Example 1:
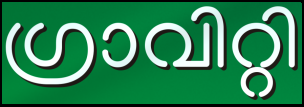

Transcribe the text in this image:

ഗ്രാവിറ്റി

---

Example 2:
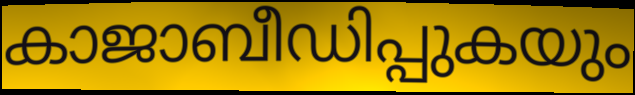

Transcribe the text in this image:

കാജാബീഡിപ്പുകയും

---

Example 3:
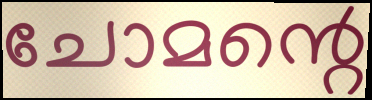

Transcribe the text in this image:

ചോമന്റെ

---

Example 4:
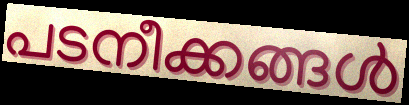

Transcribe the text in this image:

പടനീക്കങ്ങൾ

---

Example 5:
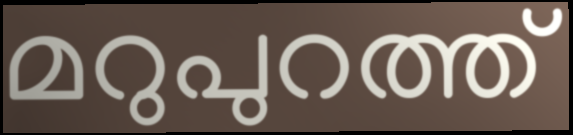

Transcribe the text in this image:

മറുപുറത്ത്